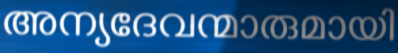
അന്യദേവന്മാരുമായി